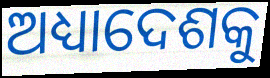
ଅଧ୍ୟାଦେଶକୁ